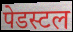
पेडस्टल